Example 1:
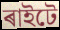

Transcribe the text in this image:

ৰাইটে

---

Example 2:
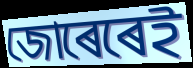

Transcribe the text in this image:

জোৰেৰেই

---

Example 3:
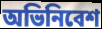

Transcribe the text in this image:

অভিনিবেশ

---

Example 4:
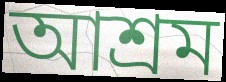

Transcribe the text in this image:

আশ্ৰম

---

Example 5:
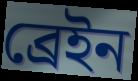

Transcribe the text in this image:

ব্ৰেইন